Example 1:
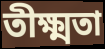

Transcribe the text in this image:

তীক্ষ্মতা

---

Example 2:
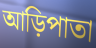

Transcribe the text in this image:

আড়িপাতা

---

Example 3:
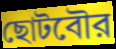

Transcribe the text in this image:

ছোটবৌর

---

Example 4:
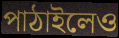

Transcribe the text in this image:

পাঠাইলেও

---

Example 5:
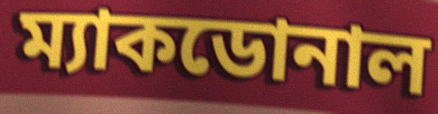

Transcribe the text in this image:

ম্যাকডোনাল